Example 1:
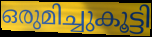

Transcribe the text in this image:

ഒരുമിച്ചുകൂട്ടി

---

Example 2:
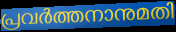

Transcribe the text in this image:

പ്രവർത്തനാനുമതി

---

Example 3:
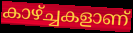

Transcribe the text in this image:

കാഴ്ച്ചകളാണ്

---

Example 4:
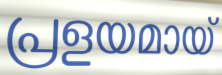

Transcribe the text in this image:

പ്രളയമായ്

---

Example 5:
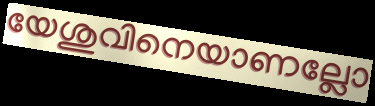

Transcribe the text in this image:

യേശുവിനെയാണല്ലോ